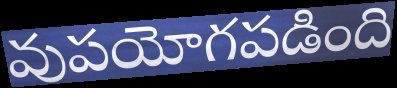
వుపయోగపడింది